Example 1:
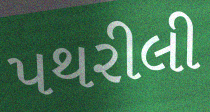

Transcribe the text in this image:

પથરીલી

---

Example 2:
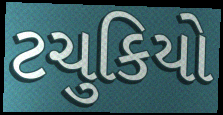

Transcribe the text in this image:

ટચુકિયો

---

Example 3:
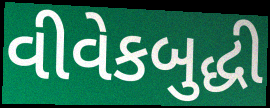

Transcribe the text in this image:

વીવેકબુદ્ધી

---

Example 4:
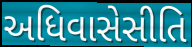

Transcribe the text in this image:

અધિવાસેસીતિ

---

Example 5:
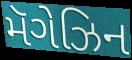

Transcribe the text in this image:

મૅગેઝિન